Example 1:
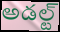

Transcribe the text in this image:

అడల్ట్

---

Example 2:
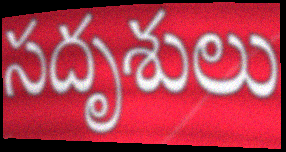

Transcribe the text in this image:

సదృశులు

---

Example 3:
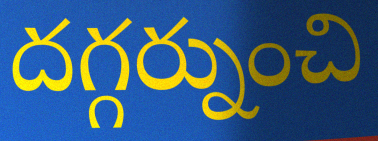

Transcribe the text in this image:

దగ్గర్నుంచి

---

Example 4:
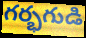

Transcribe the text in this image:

గర్భగుడి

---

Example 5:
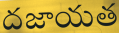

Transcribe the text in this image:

దజాయత